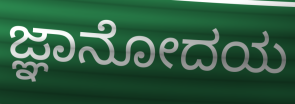
ಜ್ಞಾನೋದಯ